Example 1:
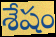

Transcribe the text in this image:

శేషం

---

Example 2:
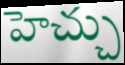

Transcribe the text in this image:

హెచ్చు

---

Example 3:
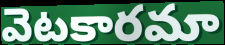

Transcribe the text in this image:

వెటకారమా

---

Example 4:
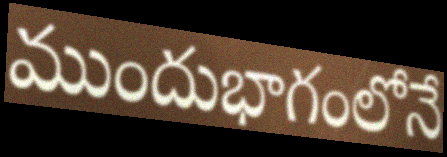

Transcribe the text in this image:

ముందుభాగంలోనే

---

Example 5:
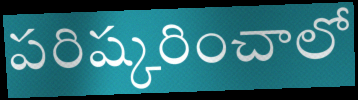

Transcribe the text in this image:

పరిష్కరించాలో